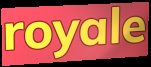
royale